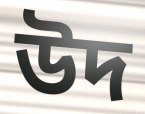
উদ